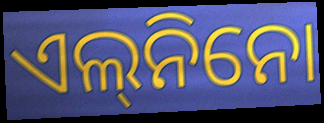
ଏଲ୍‌ନିନୋ